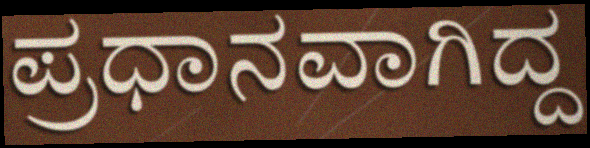
ಪ್ರಧಾನವಾಗಿದ್ದ